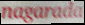
nagarada